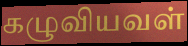
கழுவியவள்